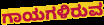
ಗಾಯಗಳಿರುವ